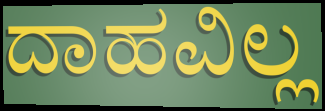
ದಾಹವಿಲ್ಲ